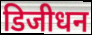
डिजीधन